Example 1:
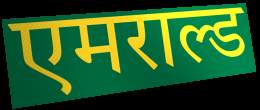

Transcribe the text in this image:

एमराल्‍ड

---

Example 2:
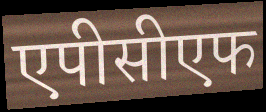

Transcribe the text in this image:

एपीसीएफ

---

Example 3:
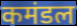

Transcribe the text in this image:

कमंडल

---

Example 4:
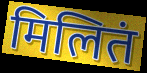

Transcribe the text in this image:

मिलितं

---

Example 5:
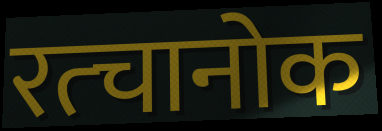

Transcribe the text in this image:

रत्चानोक